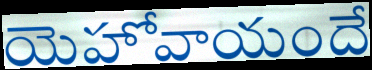
యెహోవాయందే